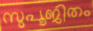
സുപൂജിതം